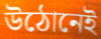
উঠোনেই